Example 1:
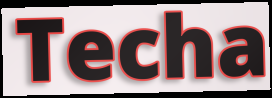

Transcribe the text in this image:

Techa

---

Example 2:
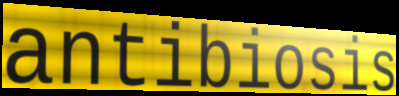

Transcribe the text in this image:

antibiosis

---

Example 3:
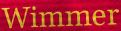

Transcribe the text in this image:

Wimmer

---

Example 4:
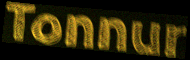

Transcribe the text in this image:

Tonnur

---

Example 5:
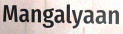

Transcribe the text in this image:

Mangalyaan